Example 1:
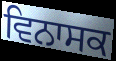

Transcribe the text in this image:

ਵਿਨਾਸਕ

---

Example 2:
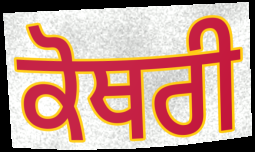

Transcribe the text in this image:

ਕੋਥਰੀ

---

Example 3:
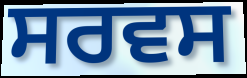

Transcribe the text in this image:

ਸਰਵਸ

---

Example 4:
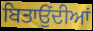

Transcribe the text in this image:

ਬਿਤਾਉਂਦੀਆਂ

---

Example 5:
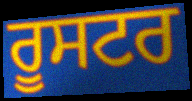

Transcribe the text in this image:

ਰੂਸਟਰ